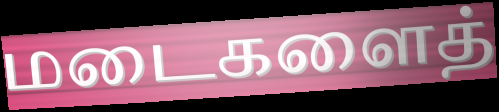
மடைகளைத்